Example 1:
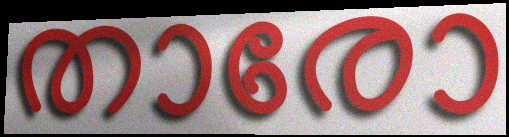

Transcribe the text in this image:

താരോ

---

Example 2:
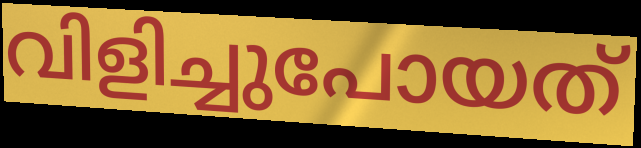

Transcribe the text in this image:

വിളിച്ചുപോയത്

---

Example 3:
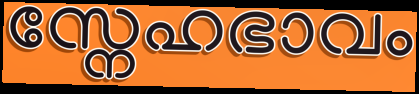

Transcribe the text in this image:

സ്നേഹഭാവം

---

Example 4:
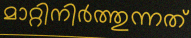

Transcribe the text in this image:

മാറ്റിനിർത്തുന്നത്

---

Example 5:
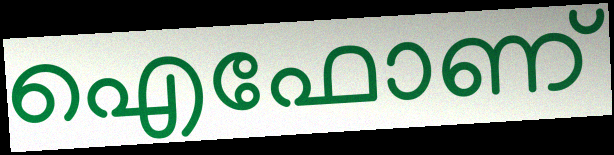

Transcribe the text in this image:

ഐഫോണ്